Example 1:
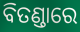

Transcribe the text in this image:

ବିତଣ୍ଡାରେ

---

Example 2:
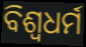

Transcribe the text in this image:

ବିଶ୍ବଧର୍ମ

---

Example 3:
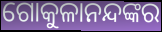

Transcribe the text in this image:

ଗୋକୁଳାନନ୍ଦଙ୍କର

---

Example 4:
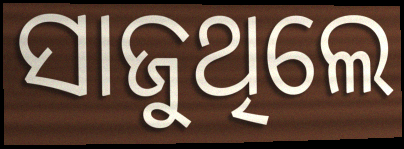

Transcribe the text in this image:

ସାଜୁଥିଲେ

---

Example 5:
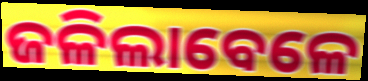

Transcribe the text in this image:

ଜଳିଲାବେଳେ